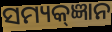
ସମ୍ୟକ୍ଜ୍ଞାନ